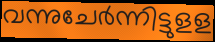
വന്നുചേർന്നിട്ടുളള